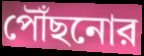
পৌঁছনোর